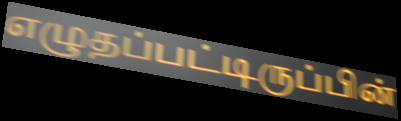
எழுதப்பட்டிருப்பின்